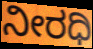
ನೀರಧಿ